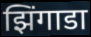
झिंगाडा